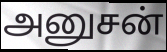
அனுசன்